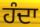
ਹੰਦਾ